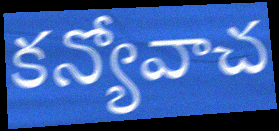
కన్యోవాచ